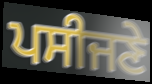
ਪਸੀਜਣੇ